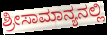
ಶ್ರೀಸಾಮಾನ್ಯನಲ್ಲಿ